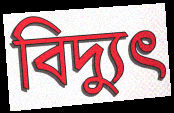
বিদ্যুৎ